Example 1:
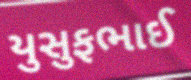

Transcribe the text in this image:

યુસુફભાઈ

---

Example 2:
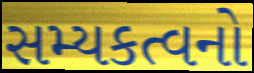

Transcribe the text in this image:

સમ્યકત્વનો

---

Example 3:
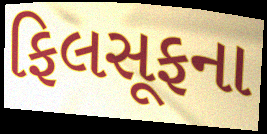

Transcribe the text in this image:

ફિલસૂફના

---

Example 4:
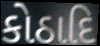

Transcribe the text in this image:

કોઠાદિ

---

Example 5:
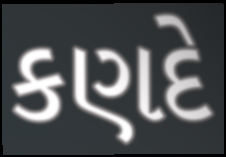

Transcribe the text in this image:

કણદે